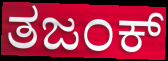
ತಜಂಕ್